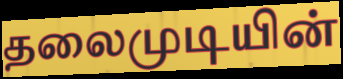
தலைமுடியின்